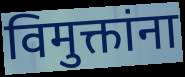
विमुक्तांना